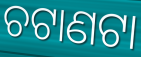
ଚଟାଣଟା